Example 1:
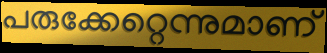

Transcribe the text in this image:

പരുക്കേറ്റെന്നുമാണ്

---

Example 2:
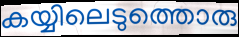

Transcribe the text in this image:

കയ്യിലെടുത്തൊരു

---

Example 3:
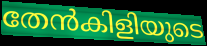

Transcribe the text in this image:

തേൻകിളിയുടെ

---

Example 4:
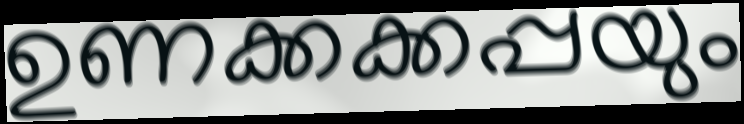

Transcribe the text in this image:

ഉണക്കക്കപ്പയും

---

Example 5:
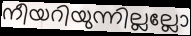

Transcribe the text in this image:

നീയറിയുന്നില്ലല്ലോ